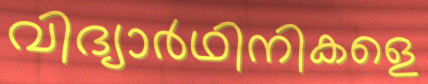
വിദ്യാർഥിനികളെ